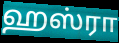
ஹஸ்ரா